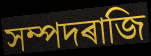
সম্পদৰাজি